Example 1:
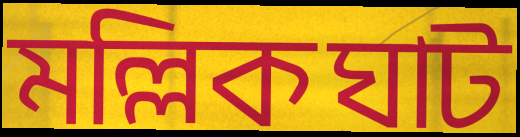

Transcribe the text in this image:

মল্লিকঘাট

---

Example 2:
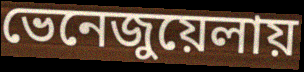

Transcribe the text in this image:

ভেনেজুয়েলায়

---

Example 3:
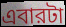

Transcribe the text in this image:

এবারটা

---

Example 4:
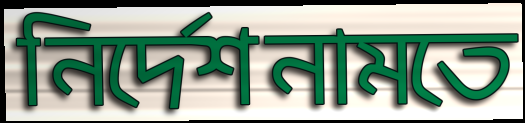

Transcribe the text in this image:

নির্দেশনামতে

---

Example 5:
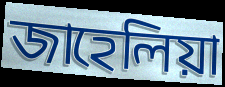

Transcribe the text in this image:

জাহেলিয়া